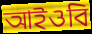
আইওবি